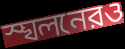
স্খলনেরও